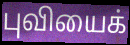
புவியைக்